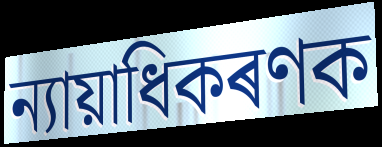
ন্যায়াধিকৰণক